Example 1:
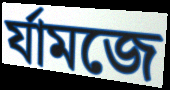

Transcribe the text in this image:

র্যামজে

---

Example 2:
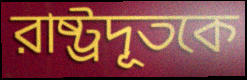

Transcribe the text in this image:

রাষ্ট্রদূতকে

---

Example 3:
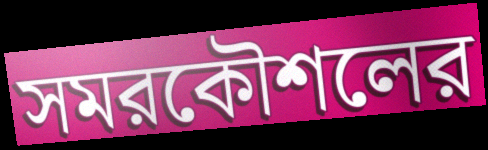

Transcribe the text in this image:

সমরকৌশলের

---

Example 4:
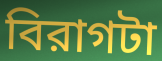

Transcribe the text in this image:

বিরাগটা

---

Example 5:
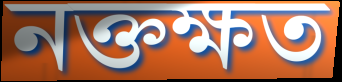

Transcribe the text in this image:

নক্তক্ষত